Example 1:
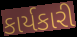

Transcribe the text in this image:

કાર્યકારી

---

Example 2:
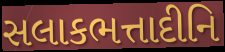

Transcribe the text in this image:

સલાકભત્તાદીનિ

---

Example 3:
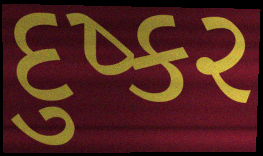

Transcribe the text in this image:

દુષ્કર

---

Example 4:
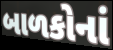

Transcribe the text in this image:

બાળકોનાં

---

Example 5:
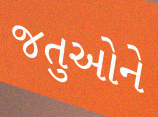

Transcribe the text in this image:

જતુઓને